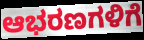
ಆಭರಣಗಳಿಗೆ